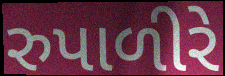
રુપાળીરે